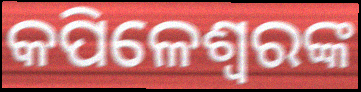
କପିଳେଶ୍ବରଙ୍କ